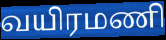
வயிரமணி